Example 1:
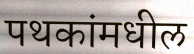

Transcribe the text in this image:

पथकांमधील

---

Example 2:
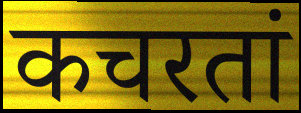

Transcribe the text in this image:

कचरतां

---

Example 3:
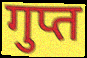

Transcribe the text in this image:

गुप्त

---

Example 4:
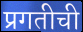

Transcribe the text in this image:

प्रगतीची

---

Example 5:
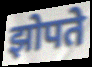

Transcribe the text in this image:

झोपते